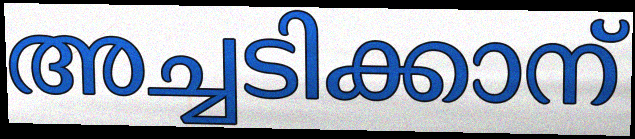
അച്ചടിക്കാന്